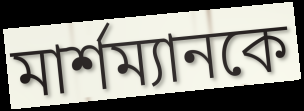
মার্শম্যানকে